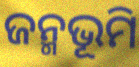
ଜନ୍ମଭୂମି